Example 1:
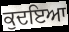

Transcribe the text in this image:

ਕੁਦਇਆ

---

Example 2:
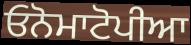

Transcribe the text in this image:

ਓਨੋਮਾਟੋਪੀਆ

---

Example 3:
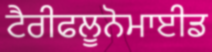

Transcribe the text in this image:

ਟੈਰੀਫਲੂਨੋਮਾਈਡ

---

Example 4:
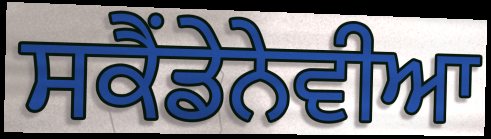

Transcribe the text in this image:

ਸਕੈਂਡੇਨੇਵੀਆ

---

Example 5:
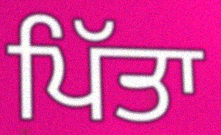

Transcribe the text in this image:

ਪਿੱਤਾ